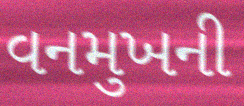
વનમુખની